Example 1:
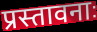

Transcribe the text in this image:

प्रस्तावनाः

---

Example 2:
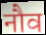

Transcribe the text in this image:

नौव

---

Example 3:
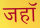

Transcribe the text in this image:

जहॉ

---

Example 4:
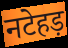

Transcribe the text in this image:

नटेहड़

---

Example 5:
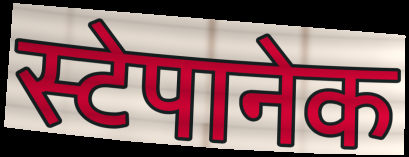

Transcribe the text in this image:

स्टेपानेक